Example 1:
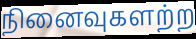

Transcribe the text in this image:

நினைவுகளற்ற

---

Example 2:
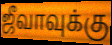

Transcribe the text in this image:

ஜீவாவுக்கு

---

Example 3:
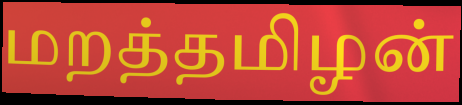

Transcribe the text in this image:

மறத்தமிழன்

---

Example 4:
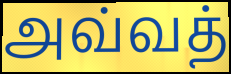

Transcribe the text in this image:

அவ்வத்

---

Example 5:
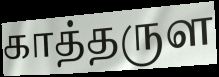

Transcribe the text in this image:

காத்தருள